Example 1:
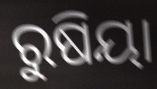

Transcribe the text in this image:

ରୁଷିୟା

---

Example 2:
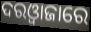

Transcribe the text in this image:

ଦରଓ୍ୱାଜାରେ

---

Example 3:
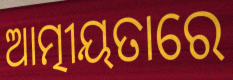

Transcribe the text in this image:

ଆତ୍ମୀୟତାରେ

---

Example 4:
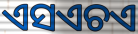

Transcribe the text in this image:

ଏସଏଚଏ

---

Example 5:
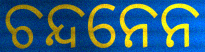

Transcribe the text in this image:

ଚନ୍ଦନେନ